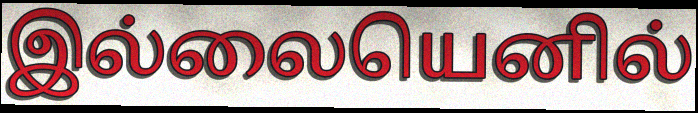
இல்லையெனில்